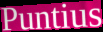
Puntius